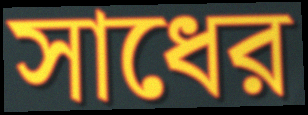
সাধের